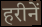
हरीनें